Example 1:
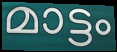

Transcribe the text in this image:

മാട്ടം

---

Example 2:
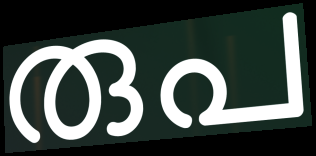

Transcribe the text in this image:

രുപ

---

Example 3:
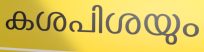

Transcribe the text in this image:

കശപിശയും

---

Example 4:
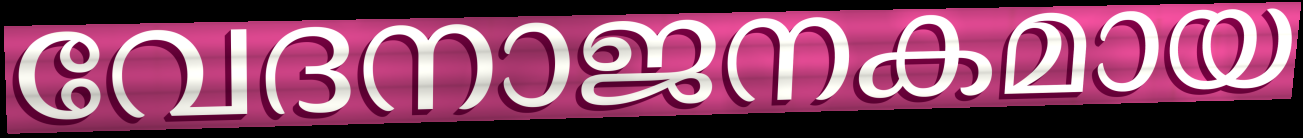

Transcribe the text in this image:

വേദനാജനകമായ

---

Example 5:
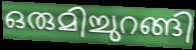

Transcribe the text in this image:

ഒരുമിച്ചുറങ്ങി